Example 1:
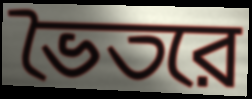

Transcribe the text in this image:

ভৈতরে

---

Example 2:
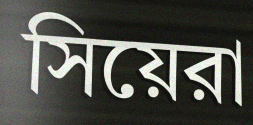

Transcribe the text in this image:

সিয়েরা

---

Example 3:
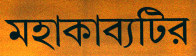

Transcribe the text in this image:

মহাকাব্যটির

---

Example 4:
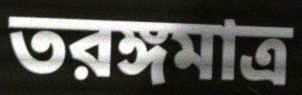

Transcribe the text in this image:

তরঙ্গমাত্র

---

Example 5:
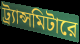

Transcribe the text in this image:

ট্র্যান্সমিটারে